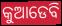
କୁଆଡେବି